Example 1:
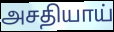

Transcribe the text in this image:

அசதியாய்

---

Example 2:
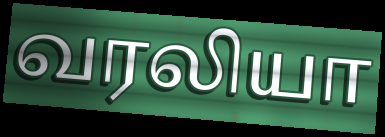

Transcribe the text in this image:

வரலியா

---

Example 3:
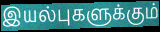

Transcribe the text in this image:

இயல்புகளுக்கும்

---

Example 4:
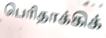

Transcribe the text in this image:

பெரிதாக்கிக்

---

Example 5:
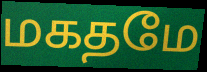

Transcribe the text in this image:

மகதமே